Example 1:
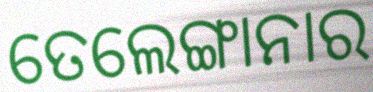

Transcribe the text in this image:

ତେଲେଙ୍ଗାନାର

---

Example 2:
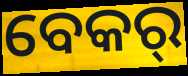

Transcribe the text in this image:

ବେକର୍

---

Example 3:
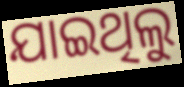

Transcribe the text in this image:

ଯାଇଥିଲୁ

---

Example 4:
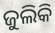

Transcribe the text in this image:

ଜୁଲିକି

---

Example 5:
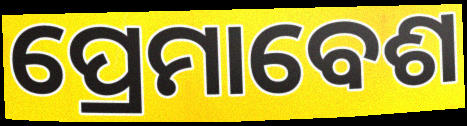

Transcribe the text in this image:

ପ୍ରେମାବେଶ